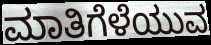
ಮಾತಿಗೆಳೆಯುವ